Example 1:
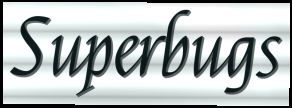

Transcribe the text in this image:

Superbugs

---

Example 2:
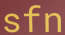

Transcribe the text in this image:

sfn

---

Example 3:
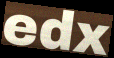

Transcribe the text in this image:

edx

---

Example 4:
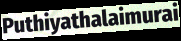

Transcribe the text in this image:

Puthiyathalaimurai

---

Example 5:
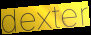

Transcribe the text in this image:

dexter